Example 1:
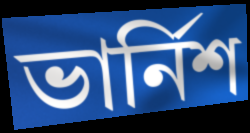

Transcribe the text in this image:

ভার্নিশ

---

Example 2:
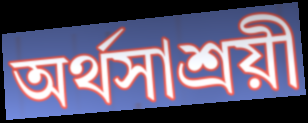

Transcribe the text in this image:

অর্থসাশ্রয়ী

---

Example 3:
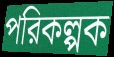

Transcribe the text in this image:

পরিকল্পক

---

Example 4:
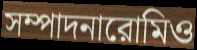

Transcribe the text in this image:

সম্পাদনারোমিও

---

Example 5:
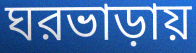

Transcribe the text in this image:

ঘরভাড়ায়